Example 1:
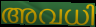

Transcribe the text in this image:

അവധി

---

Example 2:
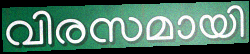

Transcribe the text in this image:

വിരസമായി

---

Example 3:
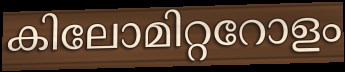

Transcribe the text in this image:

കിലോമിറ്ററോളം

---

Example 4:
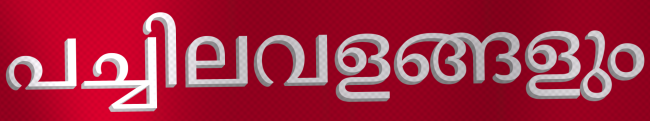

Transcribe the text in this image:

പച്ചിലവളങ്ങളും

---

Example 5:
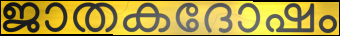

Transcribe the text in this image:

ജാതകദോഷം